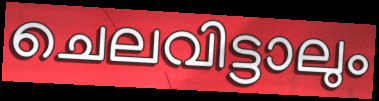
ചെലവിട്ടാലും